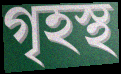
গৃহস্থ